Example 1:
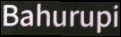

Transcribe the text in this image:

Bahurupi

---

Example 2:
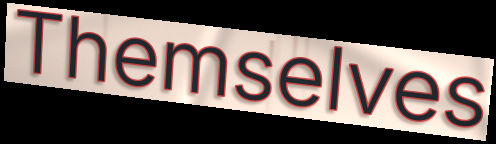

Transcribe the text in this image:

Themselves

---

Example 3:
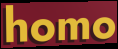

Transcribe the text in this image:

homo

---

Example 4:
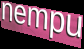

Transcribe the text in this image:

nempu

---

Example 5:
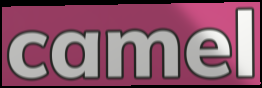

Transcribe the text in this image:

camel